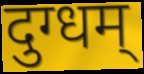
दुग्धम्